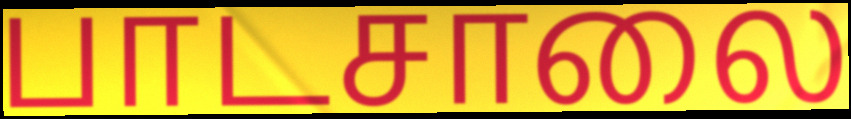
பாடசாலை